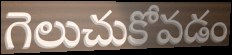
గెలుచుకోవడం